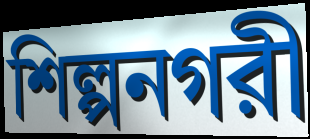
শিল্পনগরী